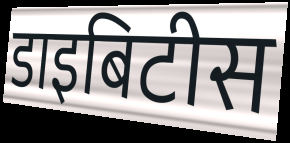
डाइबिटीस